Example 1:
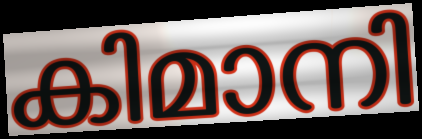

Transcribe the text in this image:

കിമാനി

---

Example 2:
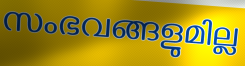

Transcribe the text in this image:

സംഭവങ്ങളുമില്ല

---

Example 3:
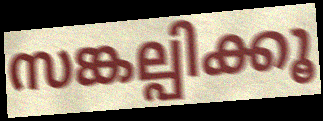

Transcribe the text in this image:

സങ്കല്പിക്കൂ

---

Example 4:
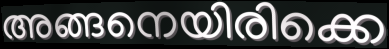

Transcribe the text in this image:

അങ്ങനെയിരിക്കെ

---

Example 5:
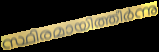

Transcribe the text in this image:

സ്ഥിരമായിത്തീർന്നു